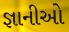
જ્ઞાનીઓ